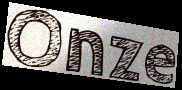
Onze